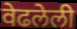
वेढलेली